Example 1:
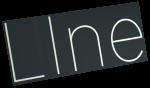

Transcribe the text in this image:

LIne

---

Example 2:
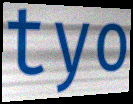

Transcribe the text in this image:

tyo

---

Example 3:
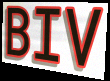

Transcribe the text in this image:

BIV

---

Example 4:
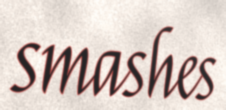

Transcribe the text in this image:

smashes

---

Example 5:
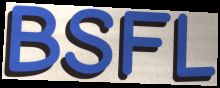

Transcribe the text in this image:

BSFL